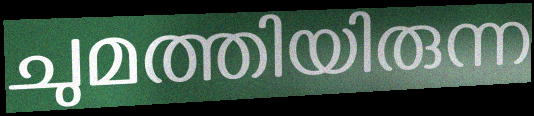
ചുമത്തിയിരുന്ന